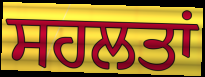
ਸਹਲਤਾਂ